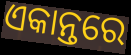
ଏକାନ୍ତରେ